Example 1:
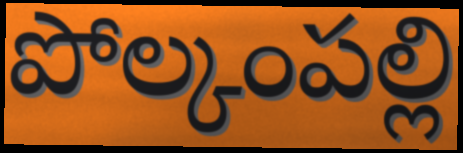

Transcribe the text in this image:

పోల్కంపల్లి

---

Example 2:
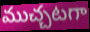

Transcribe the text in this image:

ముచ్చటగా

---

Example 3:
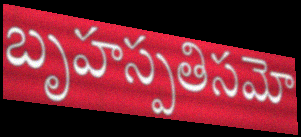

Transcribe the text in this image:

బృహస్పతిసమో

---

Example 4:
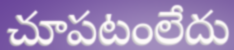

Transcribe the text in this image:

చూపటంలేదు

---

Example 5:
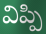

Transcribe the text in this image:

విప్పి